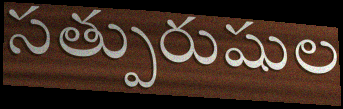
సత్పురుషుల